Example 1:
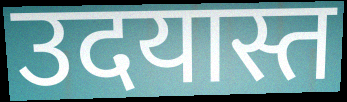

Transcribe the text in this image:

उदयास्त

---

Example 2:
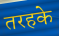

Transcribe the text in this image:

तरहके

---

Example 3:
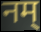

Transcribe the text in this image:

नम्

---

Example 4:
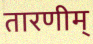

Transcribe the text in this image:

तारणीम्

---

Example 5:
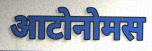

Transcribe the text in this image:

आटोनोमस